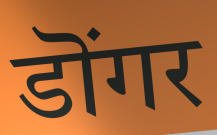
डॊंगर